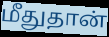
மீதுதான்